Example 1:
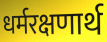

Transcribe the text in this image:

धर्मरक्षणार्थ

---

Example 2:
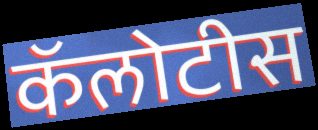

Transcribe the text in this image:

कॅलोटीस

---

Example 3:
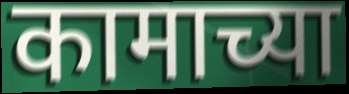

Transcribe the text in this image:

कामाच्या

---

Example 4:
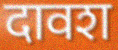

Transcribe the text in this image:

दावश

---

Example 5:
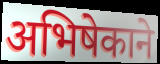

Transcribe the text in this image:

अभिषेकाने